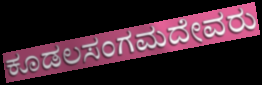
ಕೂಡಲಸಂಗಮದೇವರು